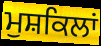
ਮੁਸ਼ਕਿਲਾਂ